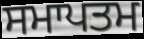
ਸਮਾਪਤਮ